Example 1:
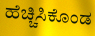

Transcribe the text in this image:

ಹೆಚ್ಚಿಸಿಕೊಂಡ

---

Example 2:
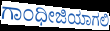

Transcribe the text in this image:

ಗಾಂಧೀಜಿಯಾಗಲಿ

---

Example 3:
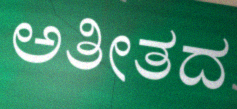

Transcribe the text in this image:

ಅತೀತದ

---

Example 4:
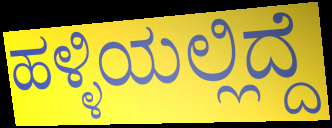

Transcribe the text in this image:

ಹಳ್ಳಿಯಲ್ಲಿದ್ದೆ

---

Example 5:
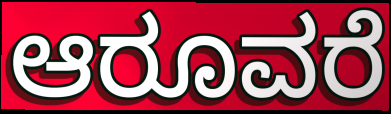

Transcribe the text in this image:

ಆರೂವರೆ